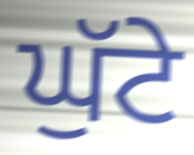
ਘੁੱਟੇ